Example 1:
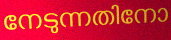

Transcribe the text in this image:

നേടുന്നതിനോ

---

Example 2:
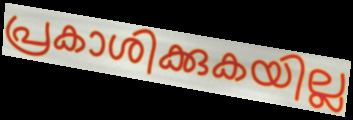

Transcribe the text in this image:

പ്രകാശിക്കുകയില്ല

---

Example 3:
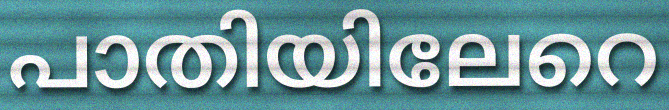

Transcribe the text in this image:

പാതിയിലേറെ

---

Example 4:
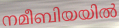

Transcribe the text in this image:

നമീബിയയിൽ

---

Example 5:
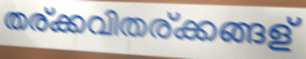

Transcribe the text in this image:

തര്ക്കവിതര്ക്കങ്ങള്